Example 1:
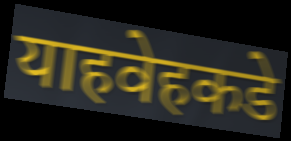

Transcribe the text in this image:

याहवेहकडे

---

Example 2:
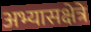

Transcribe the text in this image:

अभ्यासक्षेत्रे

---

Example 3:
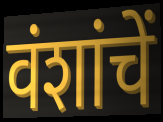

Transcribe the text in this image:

वंशांचें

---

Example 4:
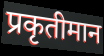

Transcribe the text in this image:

प्रकृतीमान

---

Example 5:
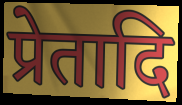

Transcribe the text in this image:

प्रेतादि